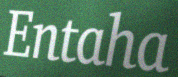
Entaha